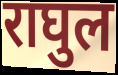
राघुल